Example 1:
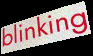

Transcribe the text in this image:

blinking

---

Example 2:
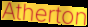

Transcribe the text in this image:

Atherton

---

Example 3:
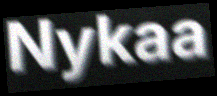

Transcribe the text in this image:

Nykaa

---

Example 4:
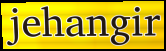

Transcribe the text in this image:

jehangir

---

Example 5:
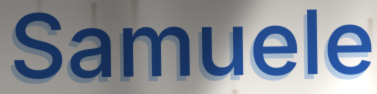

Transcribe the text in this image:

Samuele